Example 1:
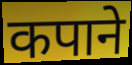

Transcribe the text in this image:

कपाने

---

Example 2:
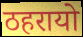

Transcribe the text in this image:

ठहरायो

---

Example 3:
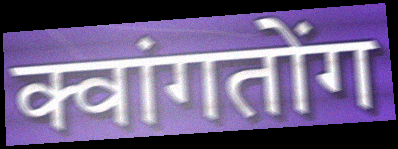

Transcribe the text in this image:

क्वांगतोंग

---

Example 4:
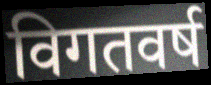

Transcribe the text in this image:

विगतवर्ष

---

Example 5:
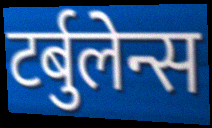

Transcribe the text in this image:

टर्बुलेन्स